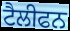
ਟੈਲੀਫਨ